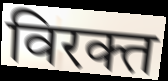
विरक्त